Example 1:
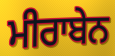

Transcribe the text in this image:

ਮੀਰਾਬੇਨ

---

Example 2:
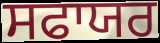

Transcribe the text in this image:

ਸਫਾਯਰ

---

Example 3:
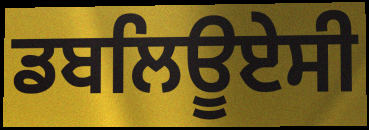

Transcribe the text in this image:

ਡਬਲਿਊਏਸੀ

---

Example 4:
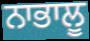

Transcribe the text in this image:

ਨਾਭਾਲੂ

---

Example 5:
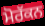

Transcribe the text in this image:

ਮੋਰੱਕਨ